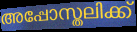
അപ്പോസ്തലിക്ക്